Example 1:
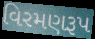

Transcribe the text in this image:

વિરમણરૂપ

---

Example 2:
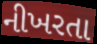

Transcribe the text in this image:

નીખરતા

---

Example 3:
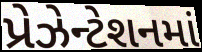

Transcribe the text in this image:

પ્રેઝેન્ટેશનમાં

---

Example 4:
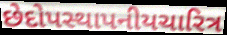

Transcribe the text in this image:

છેદોપસ્થાપનીયચારિત્ર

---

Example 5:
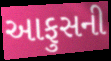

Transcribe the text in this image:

આફુસની